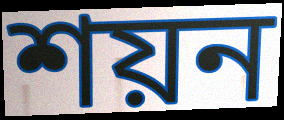
শয়ন